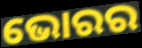
ଭୋରର